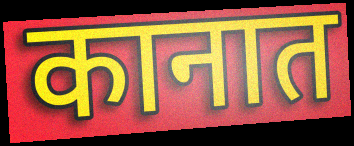
कानात